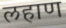
लहाण